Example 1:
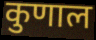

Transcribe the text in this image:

कुणाल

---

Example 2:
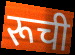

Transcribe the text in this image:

रूची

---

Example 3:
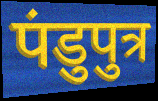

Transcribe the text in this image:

पंडुपुत्र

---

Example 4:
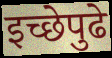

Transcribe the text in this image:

इच्छेपुढे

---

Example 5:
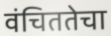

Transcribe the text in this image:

वंचिततेचा